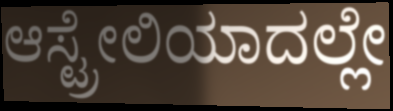
ಆಸ್ಟ್ರೇಲಿಯಾದಲ್ಲೇ